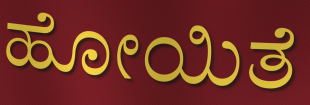
ಹೋಯಿತೆ